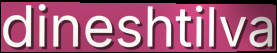
dineshtilva